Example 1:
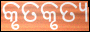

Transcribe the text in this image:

କୃତକୃତ୍ୟ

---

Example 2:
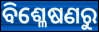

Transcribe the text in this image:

ବିଶ୍ଳେଷଣରୁ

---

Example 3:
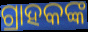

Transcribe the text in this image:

ଗ୍ରାହକଙ୍କ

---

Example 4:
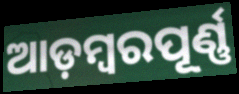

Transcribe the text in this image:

ଆଡ଼ମ୍ବରପୂର୍ଣ୍ଣ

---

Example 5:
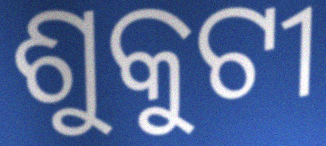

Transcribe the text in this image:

ଶୁକୁଟୀ